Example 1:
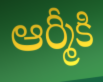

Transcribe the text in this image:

ఆర్మీకి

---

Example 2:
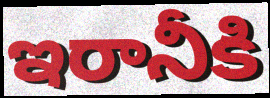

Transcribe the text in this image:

ఇరానీకి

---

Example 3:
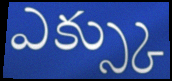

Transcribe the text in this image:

ఎక్స్కు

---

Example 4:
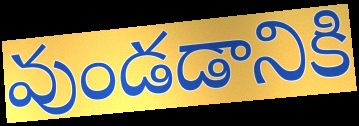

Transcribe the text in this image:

వుండడానికి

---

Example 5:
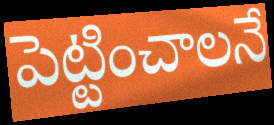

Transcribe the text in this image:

పెట్టించాలనే